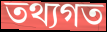
তথ্যগত